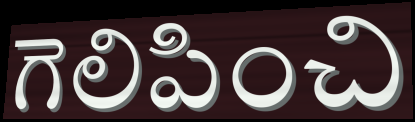
గెలిపించి